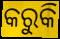
କରୁକି